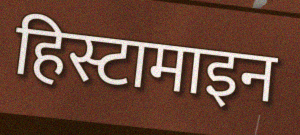
हिस्टामाइन